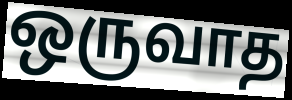
ஒருவாத